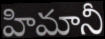
హిమానీ